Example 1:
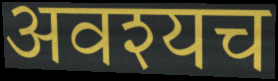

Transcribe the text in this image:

अवश्यच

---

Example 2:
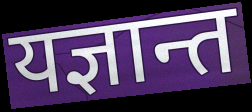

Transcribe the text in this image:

यज्ञान्त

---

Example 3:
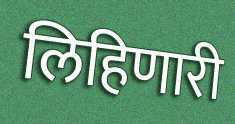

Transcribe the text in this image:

लिहिणारी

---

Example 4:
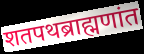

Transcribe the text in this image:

शतपथब्राह्मणांत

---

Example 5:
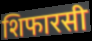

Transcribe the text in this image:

शिफारसी